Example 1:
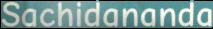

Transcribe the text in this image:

Sachidananda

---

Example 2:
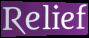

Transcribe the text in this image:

Relief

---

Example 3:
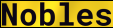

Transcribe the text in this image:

Nobles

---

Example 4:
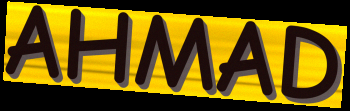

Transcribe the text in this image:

AHMAD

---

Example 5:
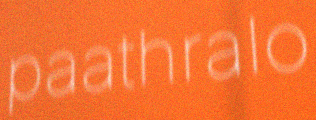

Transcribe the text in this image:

paathralo